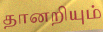
தானறியும்